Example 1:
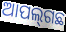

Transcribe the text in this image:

ଆପଲ୍‍ଗଛ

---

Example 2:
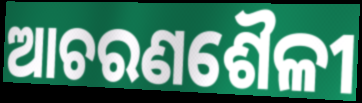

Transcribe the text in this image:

ଆଚରଣଶୈଳୀ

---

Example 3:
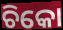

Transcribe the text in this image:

ଚିକୋ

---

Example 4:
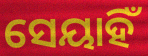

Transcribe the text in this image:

ସେୟାହିଁ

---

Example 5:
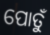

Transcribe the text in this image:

ପୋତୁଁ